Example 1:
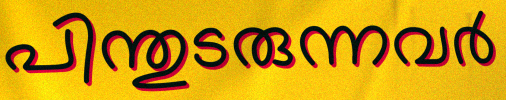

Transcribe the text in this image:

പിന്തുടരുന്നവർ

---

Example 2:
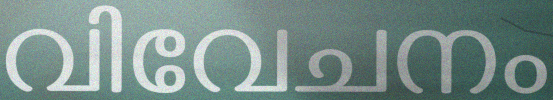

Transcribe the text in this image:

വിവേചനം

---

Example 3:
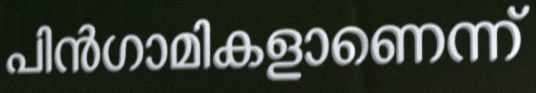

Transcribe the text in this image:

പിൻഗാമികളാണെന്ന്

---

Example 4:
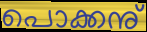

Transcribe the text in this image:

പൊക്കനു്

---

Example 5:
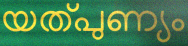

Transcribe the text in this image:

യത്പുണ്യം